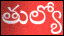
తుల్యో